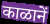
काळानें